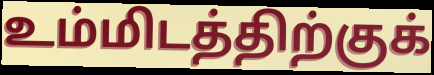
உம்மிடத்திற்குக்